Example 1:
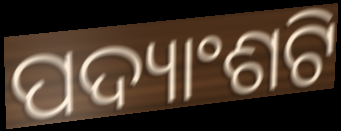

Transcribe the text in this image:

ପଦ୍ୟାଂଶଟି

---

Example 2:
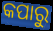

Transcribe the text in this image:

କପାରୁ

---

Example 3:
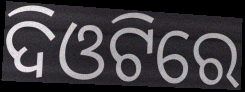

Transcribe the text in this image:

ଦିଓଟିରେ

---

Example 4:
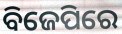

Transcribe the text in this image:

ବିଜେପିରେ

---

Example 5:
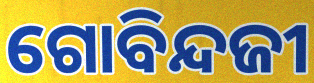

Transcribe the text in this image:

ଗୋବିନ୍ଦଜୀ